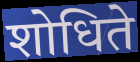
शोधिते